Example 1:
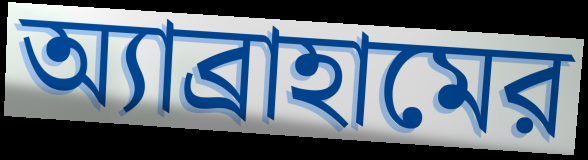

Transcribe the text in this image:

অ্যাব্রাহামের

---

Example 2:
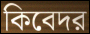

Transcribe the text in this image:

কিবেদর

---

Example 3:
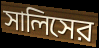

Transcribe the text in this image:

সালিসের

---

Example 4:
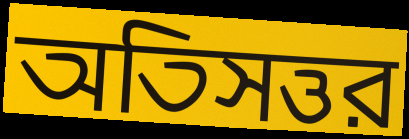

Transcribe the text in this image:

অতিসত্তর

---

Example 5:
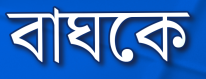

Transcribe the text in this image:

বাঘকে